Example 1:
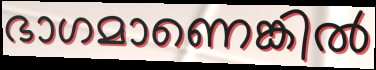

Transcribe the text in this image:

ഭാഗമാണെങ്കിൽ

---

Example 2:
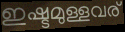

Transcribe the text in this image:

ഇഷ്ടമുള്ളവര്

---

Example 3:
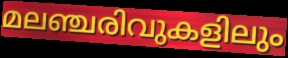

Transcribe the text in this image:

മലഞ്ചരിവുകളിലും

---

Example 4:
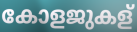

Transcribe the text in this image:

കോളജുകള്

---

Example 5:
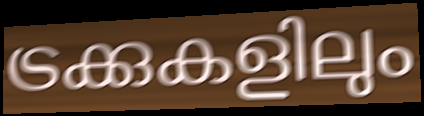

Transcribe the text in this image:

ട്രക്കുകളിലും